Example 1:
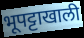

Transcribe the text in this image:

भूपट्टाखाली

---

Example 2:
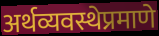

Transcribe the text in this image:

अर्थव्यवस्थेप्रमाणे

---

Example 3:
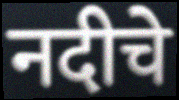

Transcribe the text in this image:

नदीचे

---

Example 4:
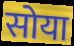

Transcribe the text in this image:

सोया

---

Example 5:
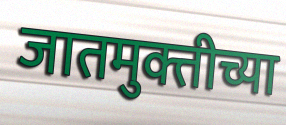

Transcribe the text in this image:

जातमुक्तीच्या